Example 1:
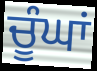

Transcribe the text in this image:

ਚੂੰਘਾਂ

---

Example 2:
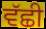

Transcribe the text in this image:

ਵੱਛੀ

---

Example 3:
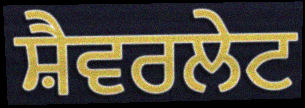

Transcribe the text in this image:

ਸ਼ੈਵਰਲੇਟ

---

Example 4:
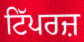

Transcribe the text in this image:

ਟਿੱਪਰਜ਼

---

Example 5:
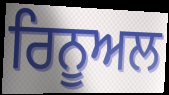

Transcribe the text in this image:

ਰਿਨੂਅਲ